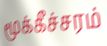
மூக்கீச்சரம்